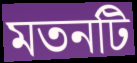
মতনটি